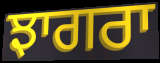
ਝਾਗਰਾ